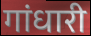
गांधारी